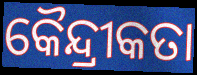
କୈନ୍ଦ୍ରୀକତା